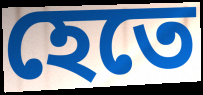
হেতে